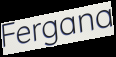
Fergana